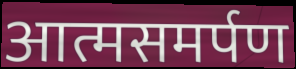
आत्मसमर्पण